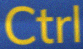
Ctrl